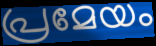
പ്രമേയം